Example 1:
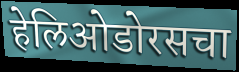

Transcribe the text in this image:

हेलिओडोरसचा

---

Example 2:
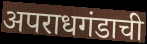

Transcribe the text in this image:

अपराधगंडाची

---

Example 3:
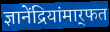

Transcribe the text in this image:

ज्ञानेंद्रियांमार्फत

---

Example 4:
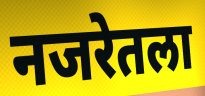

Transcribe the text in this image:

नजरेतला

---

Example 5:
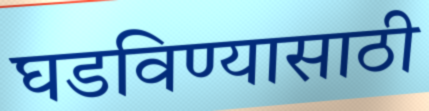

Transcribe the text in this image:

घडविण्यासाठी